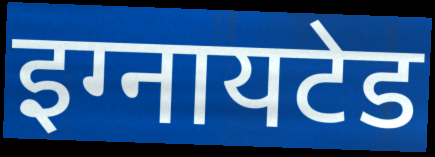
इग्नायटेड